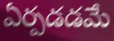
ఏర్పడడమే